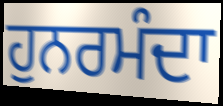
ਹੁਨਰਮੰਦਾ